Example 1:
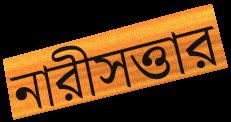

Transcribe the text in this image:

নারীসত্তার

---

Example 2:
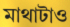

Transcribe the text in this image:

মাথাটাও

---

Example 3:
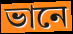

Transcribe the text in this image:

ভানে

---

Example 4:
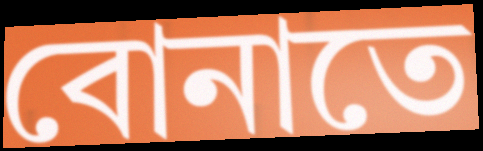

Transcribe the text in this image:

বোনাতে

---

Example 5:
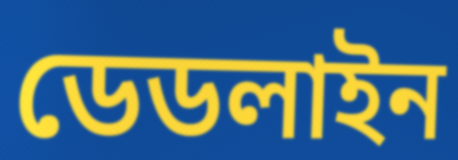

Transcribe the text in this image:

ডেডলাইন